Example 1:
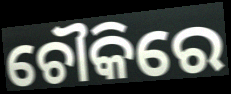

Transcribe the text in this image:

ଚୌକିରେ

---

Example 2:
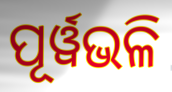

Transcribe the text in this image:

ପୂର୍ୱଭଳି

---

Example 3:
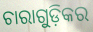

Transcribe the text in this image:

ଚାରାଗୁଡ଼ିକର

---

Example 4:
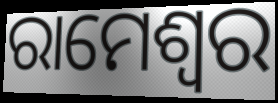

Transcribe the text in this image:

ରାମେଶ୍ୱର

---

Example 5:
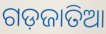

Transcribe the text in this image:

ଗଡ଼ଜାତିଆ